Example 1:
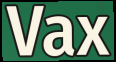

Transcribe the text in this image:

Vax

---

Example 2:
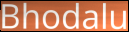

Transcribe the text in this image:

Bhodalu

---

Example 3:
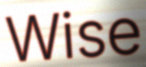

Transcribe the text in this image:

Wise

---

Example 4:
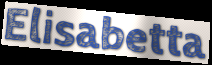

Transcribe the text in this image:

Elisabetta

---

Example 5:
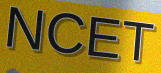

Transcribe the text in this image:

NCET